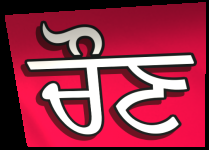
ਚੌਣ